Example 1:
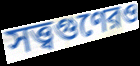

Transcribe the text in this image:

সত্ত্বগুণেরও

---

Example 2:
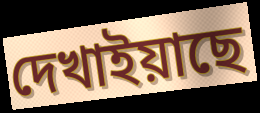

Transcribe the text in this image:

দেখাইয়াছে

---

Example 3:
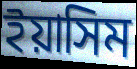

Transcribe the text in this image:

ইয়াসিম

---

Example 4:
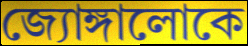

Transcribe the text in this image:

জ্যোঙ্গালোকে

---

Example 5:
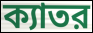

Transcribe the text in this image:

ক্যাতর